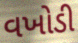
વખોડી